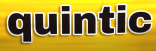
quintic